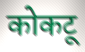
कोकटू